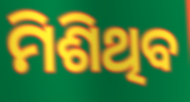
ମିଶିଥିବ